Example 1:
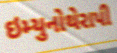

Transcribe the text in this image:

ઇમ્યુનોથેરાપી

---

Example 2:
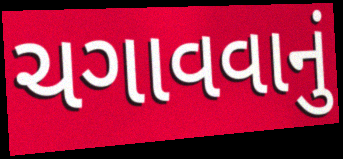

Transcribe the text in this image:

ચગાવવાનું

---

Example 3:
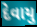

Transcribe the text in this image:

દેવાયુ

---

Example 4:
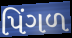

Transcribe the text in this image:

પિંગળ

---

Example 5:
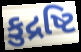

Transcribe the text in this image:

કુદ્રષ્ટિ